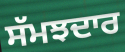
ਸੱਮਝਦਾਰ